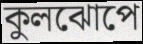
কুলঝোপে